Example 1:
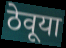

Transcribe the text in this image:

ठेवूया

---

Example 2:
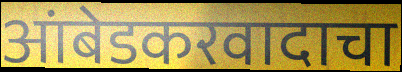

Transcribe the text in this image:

आंबेडकरवादाचा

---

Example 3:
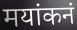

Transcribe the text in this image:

मयांकनं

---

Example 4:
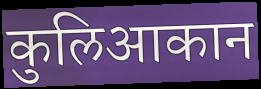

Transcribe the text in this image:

कुलिआकान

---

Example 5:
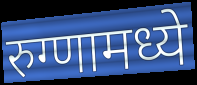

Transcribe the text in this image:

रुग्णामध्ये